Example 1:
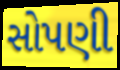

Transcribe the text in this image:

સોપણી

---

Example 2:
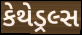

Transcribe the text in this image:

કેથેડ્રલ્સ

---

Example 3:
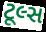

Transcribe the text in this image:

ટૂલ્સ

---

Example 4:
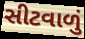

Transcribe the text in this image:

સીટવાળું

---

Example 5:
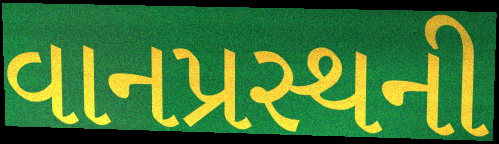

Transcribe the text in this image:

વાનપ્રસ્થની